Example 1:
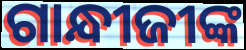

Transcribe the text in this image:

ଗାନ୍ଧୀଜୀଙ୍କ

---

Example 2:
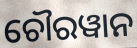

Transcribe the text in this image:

ଚୌରୱାନ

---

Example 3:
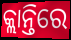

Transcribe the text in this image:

କ୍ଲାନ୍ତିରେ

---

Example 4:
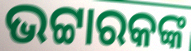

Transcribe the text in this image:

ଭଟ୍ଟାରକଙ୍କ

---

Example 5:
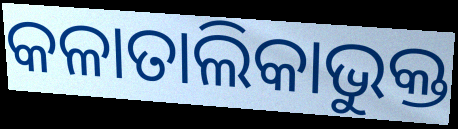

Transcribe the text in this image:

କଳାତାଲିକାଭୁକ୍ତ